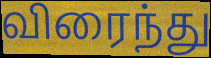
விரைந்து